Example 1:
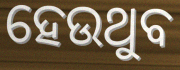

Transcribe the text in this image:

ହେଉଥୁବ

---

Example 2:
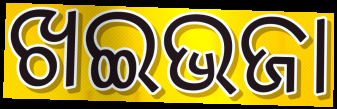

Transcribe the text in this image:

ଖଇଭଜା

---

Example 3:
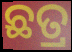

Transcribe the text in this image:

ଛତ୍ର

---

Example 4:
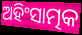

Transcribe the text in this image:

ଅହିଂସାତ୍ମକ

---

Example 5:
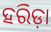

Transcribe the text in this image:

ହରିଡ଼ା